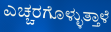
ಎಚ್ಚರಗೊಳ್ಳುತ್ತಾಳೆ